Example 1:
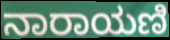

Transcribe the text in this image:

ನಾರಾಯಣಿ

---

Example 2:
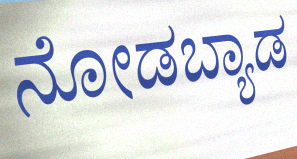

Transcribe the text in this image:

ನೋಡಬ್ಯಾಡ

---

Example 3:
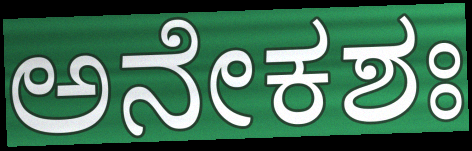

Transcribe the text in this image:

ಅನೇಕಶಃ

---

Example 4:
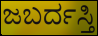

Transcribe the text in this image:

ಜಬರ್ದಸ್ತಿ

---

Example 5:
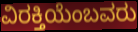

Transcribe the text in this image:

ವಿರಕ್ತಿಯೆಂಬವರು